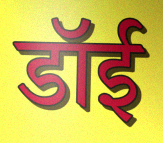
डॉई